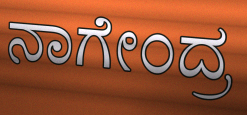
ನಾಗೇಂದ್ರ